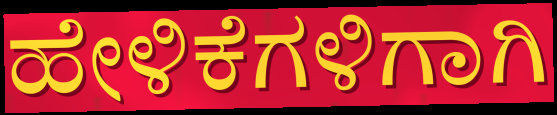
ಹೇಳಿಕೆಗಳಿಗಾಗಿ